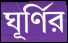
ঘূর্ণির